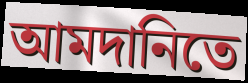
আমদানিতে